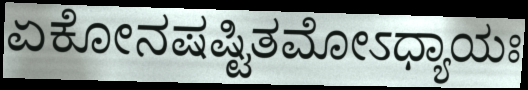
ಏಕೋನಷಷ್ಟಿತಮೋಽಧ್ಯಾಯಃ